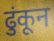
ढुंकून